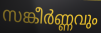
സങ്കീർണ്ണവും